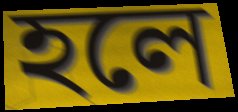
হলে